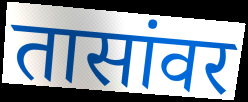
तासांवर